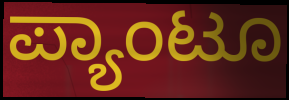
ಪ್ಯಾಂಟೂ